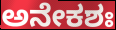
ಅನೇಕಶಃ